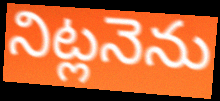
నిట్లనెను